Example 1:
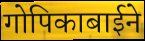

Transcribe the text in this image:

गोपिकाबाईने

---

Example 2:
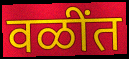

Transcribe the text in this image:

वळींत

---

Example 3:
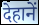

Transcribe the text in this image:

देहानें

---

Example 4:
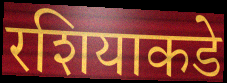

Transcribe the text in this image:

रशियाकडे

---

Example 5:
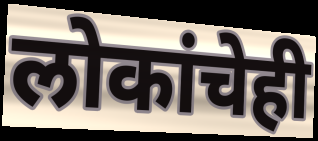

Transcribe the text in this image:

लोकांचेही